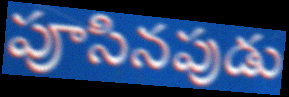
పూసినపుడు